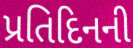
પ્રતિદિનની